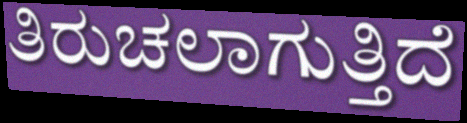
ತಿರುಚಲಾಗುತ್ತಿದೆ